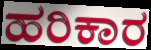
ಹರಿಕಾರ